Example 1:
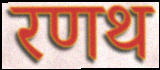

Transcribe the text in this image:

रणथ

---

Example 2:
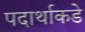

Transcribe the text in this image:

पदार्थाकडे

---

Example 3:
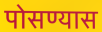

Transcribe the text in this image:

पोसण्यास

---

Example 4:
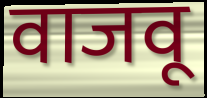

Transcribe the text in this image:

वाजवू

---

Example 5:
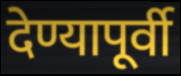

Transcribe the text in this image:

देण्यापूर्वी